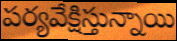
పర్యవేక్షిస్తున్నాయి